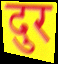
दुर